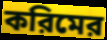
করিমের